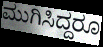
ಮುಗಿಸಿದ್ದರೂ